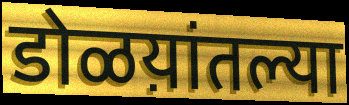
डोळय़ांतल्या